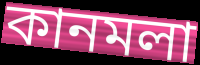
কানমলা